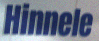
Hinnele